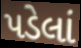
પડેલાં